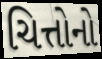
ચિત્તોનો